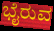
ಭೈರುವ